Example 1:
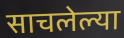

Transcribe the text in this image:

साचलेल्या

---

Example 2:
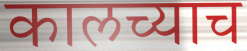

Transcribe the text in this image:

कालच्याच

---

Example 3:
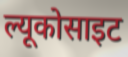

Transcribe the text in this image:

ल्यूकोसाइट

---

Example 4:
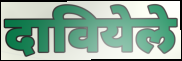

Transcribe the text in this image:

दावियेले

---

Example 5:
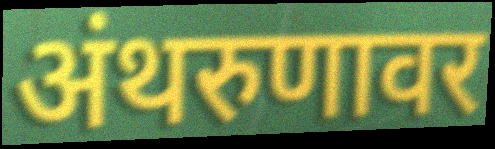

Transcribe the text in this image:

अंथरुणावर